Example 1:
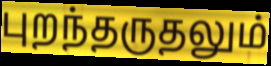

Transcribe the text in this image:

புறந்தருதலும்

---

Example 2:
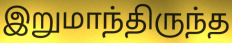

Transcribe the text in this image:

இறுமாந்திருந்த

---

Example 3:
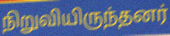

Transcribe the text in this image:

நிறுவியிருந்தனர்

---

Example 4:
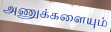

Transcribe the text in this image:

அணுக்களையும்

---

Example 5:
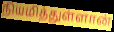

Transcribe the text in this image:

நியமித்துள்ளான்